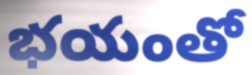
భయంతో